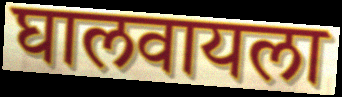
घालवायला